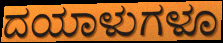
ದಯಾಳುಗಳೂ